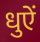
धुऐं